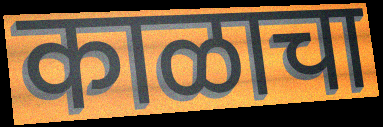
काळाचा